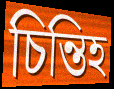
চিন্তিহ